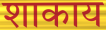
शाकाय